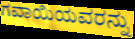
ಗವಾಯಿಯವರನ್ನು